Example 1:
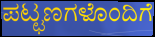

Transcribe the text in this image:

ಪಟ್ಟಣಗಳೊಂದಿಗೆ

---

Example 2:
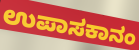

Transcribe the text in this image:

ಉಪಾಸಕಾನಂ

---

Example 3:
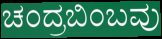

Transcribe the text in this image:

ಚಂದ್ರಬಿಂಬವು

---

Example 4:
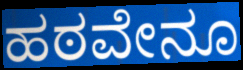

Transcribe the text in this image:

ಹಠವೇನೂ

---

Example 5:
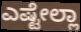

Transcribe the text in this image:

ಎಷ್ಟೇಲ್ಲಾ